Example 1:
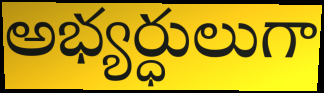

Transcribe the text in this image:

అభ్యర్ధులుగా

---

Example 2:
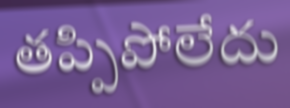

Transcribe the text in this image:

తప్పిపోలేదు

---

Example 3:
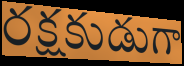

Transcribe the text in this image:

రక్షకుడుగా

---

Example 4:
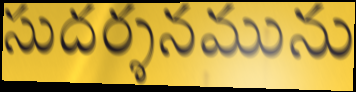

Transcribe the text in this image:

సుదర్శనమును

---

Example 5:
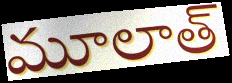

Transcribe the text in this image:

మూలాత్